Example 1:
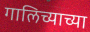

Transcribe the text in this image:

गालिच्याच्या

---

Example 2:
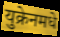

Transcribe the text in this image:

युक्रेनमधे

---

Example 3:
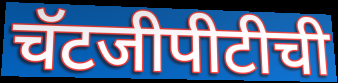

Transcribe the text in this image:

चॅटजीपीटीची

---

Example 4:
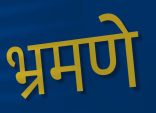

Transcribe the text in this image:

भ्रमणे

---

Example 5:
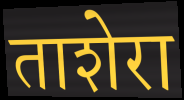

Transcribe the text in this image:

ताशेरा